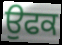
ਉਫਕ